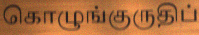
கொழுங்குருதிப்